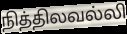
நித்திலவல்லி